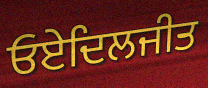
ਓਏਦਿਲਜੀਤ